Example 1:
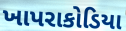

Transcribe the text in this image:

ખાપરાકોડિયા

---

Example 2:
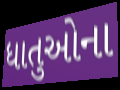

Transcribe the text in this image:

ધાતુઓના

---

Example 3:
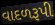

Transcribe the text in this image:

વાદળરૂપી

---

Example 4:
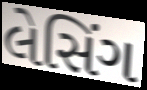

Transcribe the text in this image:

લેસિંગ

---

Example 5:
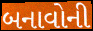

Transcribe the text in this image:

બનાવોની